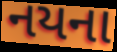
નયના